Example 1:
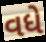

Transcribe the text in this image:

વધે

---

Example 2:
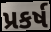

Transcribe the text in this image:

પ્રકર્ષ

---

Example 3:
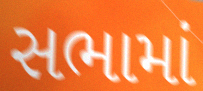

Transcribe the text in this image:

સભામાં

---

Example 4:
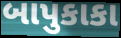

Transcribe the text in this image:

બાપુકાકા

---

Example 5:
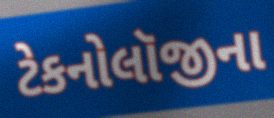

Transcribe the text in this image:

ટેકનોલૉજીના